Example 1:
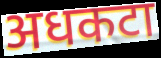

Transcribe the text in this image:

अधकटा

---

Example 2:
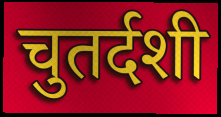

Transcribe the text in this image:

चुतर्दशी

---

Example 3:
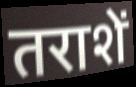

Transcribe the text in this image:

तराशें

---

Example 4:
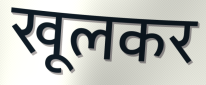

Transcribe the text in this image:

खूलकर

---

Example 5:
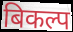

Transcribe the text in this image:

बिकल्प